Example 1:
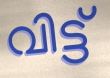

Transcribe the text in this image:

വിട്ട്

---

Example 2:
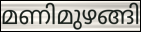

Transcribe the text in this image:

മണിമുഴങ്ങി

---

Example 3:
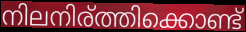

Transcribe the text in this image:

നിലനിര്ത്തിക്കൊണ്ട്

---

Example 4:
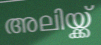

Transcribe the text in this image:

അലിയ്ക്ക്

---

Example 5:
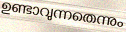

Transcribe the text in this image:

ഉണ്ടാവുന്നതെന്നും